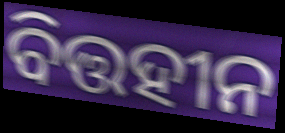
ବିତ୍ତହୀନ